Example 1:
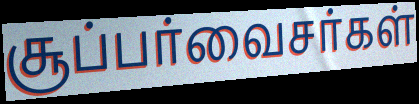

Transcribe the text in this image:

சூப்பர்வைசர்கள்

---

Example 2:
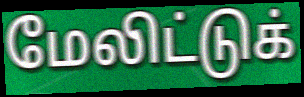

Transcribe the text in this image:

மேலிட்டுக்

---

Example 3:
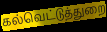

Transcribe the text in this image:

கல்வெட்டுத்துறை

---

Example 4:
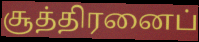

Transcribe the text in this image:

சூத்திரனைப்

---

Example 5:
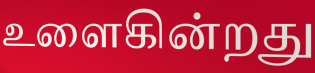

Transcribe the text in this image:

உளைகின்றது